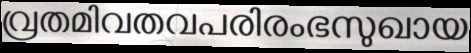
വ്രതമിവതവപരിരംഭസുഖായ